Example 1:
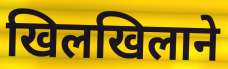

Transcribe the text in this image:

खिलखिलाने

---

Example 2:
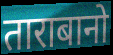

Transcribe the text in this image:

ताराबानो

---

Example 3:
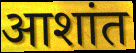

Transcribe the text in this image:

आशांत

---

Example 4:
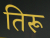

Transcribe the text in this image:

तिरू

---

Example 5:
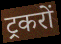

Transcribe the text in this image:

ट्रकरों